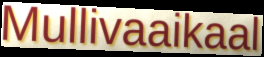
Mullivaaikaal